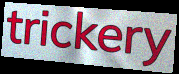
trickery